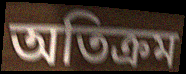
অতিক্রম